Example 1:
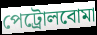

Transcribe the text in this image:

পেট্রোলবোমা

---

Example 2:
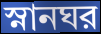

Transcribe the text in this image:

স্নানঘর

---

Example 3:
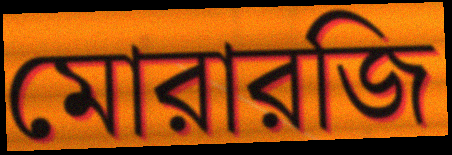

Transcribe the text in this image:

মোরারজি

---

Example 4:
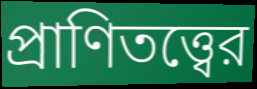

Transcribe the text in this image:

প্রাণিতত্ত্বের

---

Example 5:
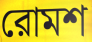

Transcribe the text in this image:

রোমশ